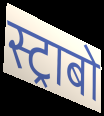
स्ट्राबो